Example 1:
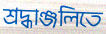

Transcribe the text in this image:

শ্রদ্ধাঞ্জলিতে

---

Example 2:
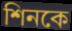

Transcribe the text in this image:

শিনকে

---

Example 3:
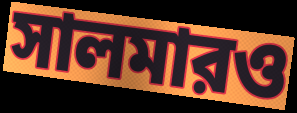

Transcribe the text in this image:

সালমারও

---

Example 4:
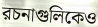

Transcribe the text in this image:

রচনাগুলিকেও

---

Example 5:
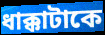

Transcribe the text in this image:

ধাক্কাটাকে